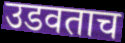
उडवताच